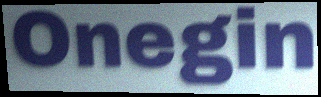
Onegin